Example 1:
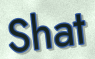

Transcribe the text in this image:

Shat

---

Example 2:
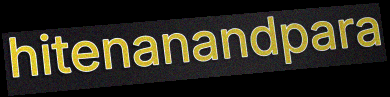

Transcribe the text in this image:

hitenanandpara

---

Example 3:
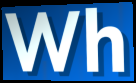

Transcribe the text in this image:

Wh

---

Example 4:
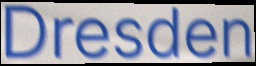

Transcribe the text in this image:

Dresden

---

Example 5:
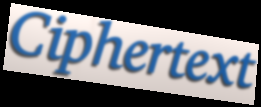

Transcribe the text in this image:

Ciphertext